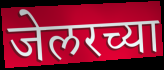
जेलरच्या